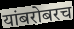
यांबरोबरच